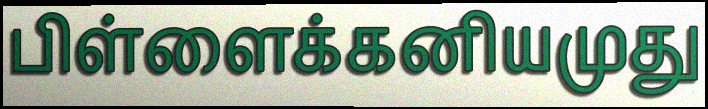
பிள்ளைக்கனியமுது